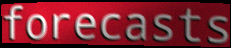
forecasts